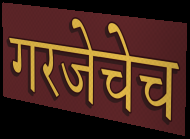
गरजेचेच